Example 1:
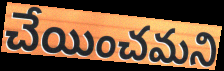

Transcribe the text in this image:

చేయించమని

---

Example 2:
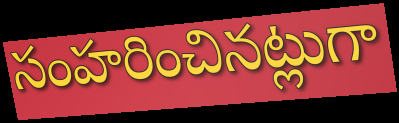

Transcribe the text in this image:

సంహరించినట్లుగా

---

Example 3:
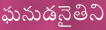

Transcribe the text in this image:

ఘనుడనైతిని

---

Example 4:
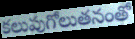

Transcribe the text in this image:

కలుపుగోలుతనంతో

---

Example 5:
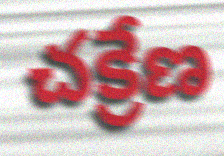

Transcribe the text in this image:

చక్రేణ